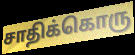
சாதிக்கொரு